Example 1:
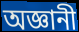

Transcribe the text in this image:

অজ্ঞানী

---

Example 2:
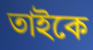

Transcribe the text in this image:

তাইকে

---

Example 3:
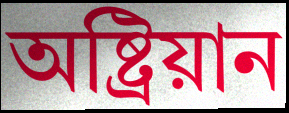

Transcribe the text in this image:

অষ্ট্ৰিয়ান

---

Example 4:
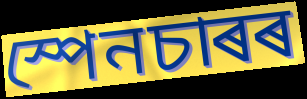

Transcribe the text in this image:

স্পেনচাৰৰ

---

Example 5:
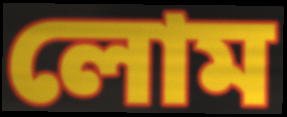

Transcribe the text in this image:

লোম